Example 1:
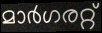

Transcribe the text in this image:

മാർഗരറ്റ്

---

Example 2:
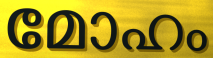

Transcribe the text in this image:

മോഹം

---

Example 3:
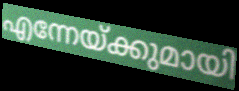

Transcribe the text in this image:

എന്നേയ്ക്കുമായി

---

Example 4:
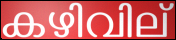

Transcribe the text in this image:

കഴിവില്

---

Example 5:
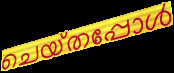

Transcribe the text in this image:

ചെയ്‌തപ്പോൾ